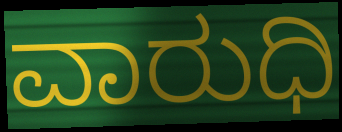
ವಾರುಧಿ